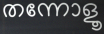
തന്നോളൂ